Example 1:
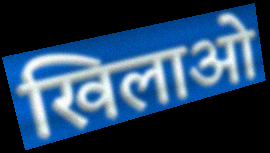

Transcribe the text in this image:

खिलाओ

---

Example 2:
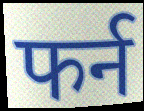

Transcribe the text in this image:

फर्न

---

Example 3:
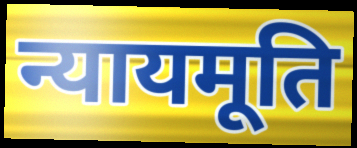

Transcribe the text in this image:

न्यायमूति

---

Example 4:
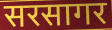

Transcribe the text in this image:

सरसागर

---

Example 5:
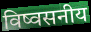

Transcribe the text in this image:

विष्वसनीय